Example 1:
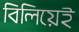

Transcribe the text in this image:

বিলিয়েই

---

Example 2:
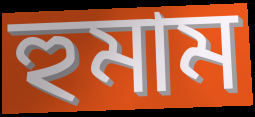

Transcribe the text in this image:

হুমাম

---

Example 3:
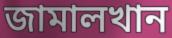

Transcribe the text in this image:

জামালখান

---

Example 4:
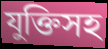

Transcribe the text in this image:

যুক্তিসহ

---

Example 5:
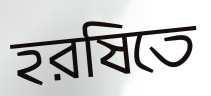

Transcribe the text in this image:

হরষিতে